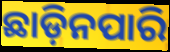
ଛାଡ଼ିନପାରି